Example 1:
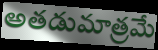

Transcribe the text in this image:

అతడుమాత్రమే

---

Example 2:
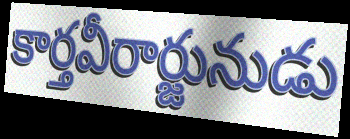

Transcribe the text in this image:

కార్తవీరార్జునుడు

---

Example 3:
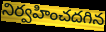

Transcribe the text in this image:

నిర్వహించదగిన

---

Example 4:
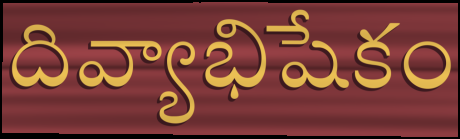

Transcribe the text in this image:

దివ్యాభిషేకం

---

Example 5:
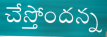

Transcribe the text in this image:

చేస్తోందన్న